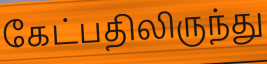
கேட்பதிலிருந்து